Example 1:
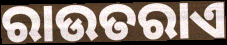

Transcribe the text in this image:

ରାଉତରାଏ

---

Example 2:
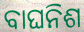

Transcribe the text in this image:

ବାଘନିଶ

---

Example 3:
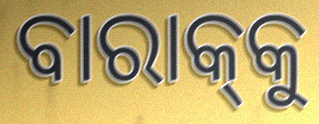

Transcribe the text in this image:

ବାରାକ୍‌କୁ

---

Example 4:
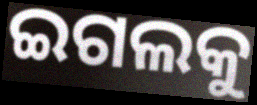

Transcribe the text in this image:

ଇଗଲକୁ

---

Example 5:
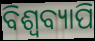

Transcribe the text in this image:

ବିଶ୍ବବ୍ୟାପି